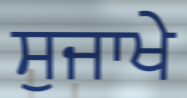
ਸੁਜਾਖੇ